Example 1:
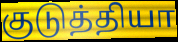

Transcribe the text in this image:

குடுத்தியா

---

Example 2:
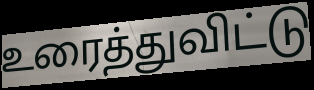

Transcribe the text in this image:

உரைத்துவிட்டு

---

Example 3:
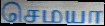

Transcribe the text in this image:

செமயா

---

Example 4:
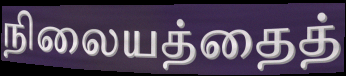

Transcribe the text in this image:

நிலையத்தைத்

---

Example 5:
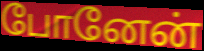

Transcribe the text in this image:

போனேன்